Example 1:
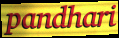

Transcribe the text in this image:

pandhari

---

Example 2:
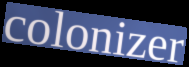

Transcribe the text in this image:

colonizer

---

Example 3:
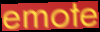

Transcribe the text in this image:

emote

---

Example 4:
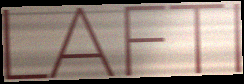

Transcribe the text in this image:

LAFTI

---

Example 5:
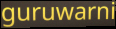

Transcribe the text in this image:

guruwarni